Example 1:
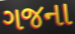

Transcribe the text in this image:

ગજના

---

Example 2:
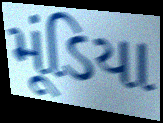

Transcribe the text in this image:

મૂંડિયા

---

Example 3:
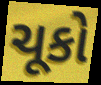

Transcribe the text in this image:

ચૂકો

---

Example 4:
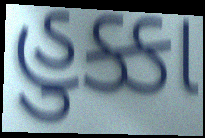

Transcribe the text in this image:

હુક્કા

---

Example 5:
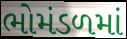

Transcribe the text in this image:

ભોમંડળમાં